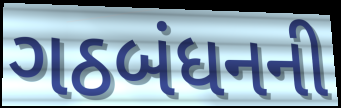
ગઠબંધનની